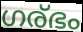
ഗര്ഭം